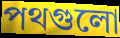
পথগুলো